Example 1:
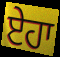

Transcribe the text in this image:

ਏਹਾ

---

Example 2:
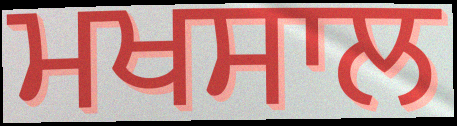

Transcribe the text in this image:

ਮਖਸਾਲ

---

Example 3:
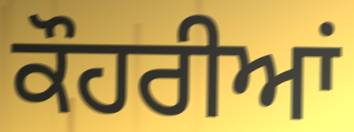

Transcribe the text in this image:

ਕੌਹਰੀਆਂ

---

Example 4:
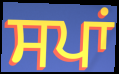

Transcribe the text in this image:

ਸਪਾਂ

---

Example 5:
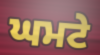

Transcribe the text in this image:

ਘਮਟੇ